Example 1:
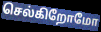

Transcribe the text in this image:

செல்கிறோமோ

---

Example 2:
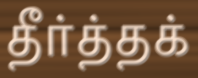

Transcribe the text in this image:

தீர்த்தக்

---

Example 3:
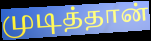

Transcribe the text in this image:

முடித்தான்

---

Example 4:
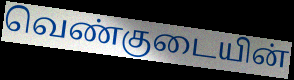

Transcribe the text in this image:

வெண்குடையின்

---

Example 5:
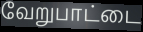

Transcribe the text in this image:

வேறுபாட்டை